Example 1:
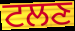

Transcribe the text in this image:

ਟਲਣ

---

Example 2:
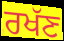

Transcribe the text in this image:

ਰਖੱਣ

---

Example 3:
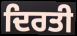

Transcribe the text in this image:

ਦਿਰਤੀ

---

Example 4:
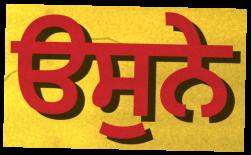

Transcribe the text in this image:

ੳਸੁਨੇ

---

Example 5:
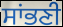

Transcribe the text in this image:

ਸਾਂਭਣੀ